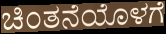
ಚಿಂತನೆಯೊಳಗೆ